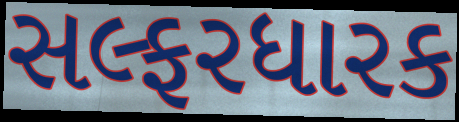
સલ્ફરધારક